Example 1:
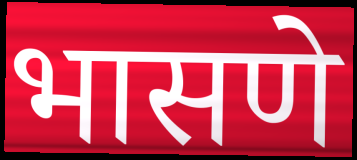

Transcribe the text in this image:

भासणे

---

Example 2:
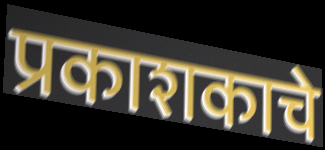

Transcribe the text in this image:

प्रकाशकाचे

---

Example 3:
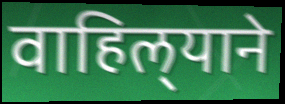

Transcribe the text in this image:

वाहिल्याने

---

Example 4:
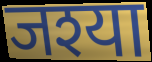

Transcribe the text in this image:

जश्या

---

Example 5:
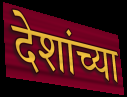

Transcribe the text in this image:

देशांच्या